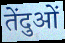
तेंदुओं